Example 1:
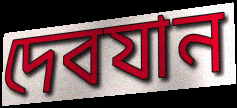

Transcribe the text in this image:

দেবযান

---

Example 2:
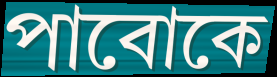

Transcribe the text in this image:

পাবোকে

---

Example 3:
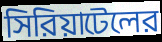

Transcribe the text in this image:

সিরিয়াটেলের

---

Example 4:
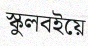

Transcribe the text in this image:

স্কুলবইয়ে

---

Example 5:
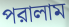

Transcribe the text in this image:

পরালাম